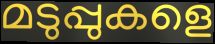
മടുപ്പുകളെ